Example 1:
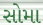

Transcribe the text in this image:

સોમા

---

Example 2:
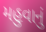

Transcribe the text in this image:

મહુવાનું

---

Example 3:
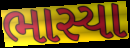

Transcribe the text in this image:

ભાસ્યા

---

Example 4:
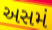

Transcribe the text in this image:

અસમં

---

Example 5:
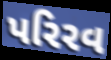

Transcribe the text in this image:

પરિરવ